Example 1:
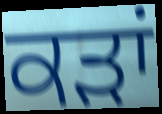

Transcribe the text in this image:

ਕੜਾਂ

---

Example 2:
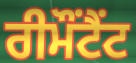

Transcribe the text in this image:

ਰੀਮੌਂਟੈਂਟ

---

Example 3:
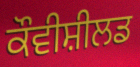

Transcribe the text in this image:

ਕੌਵੀਸ਼ੀਲਡ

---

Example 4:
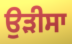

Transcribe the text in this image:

ਉਡ਼ੀਸਾ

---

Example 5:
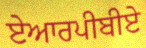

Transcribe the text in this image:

ਏਆਰਪੀਬੀਏ